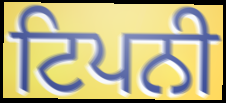
ਟਿਪਨੀ